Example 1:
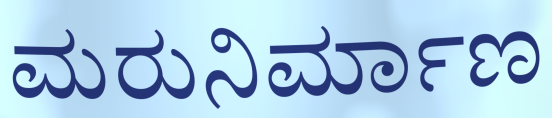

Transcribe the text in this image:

ಮರುನಿರ್ಮಾಣ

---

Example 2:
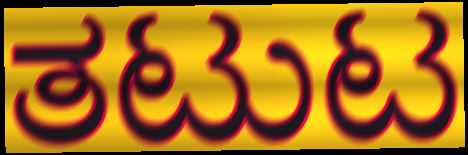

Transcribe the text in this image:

ತಟುಟ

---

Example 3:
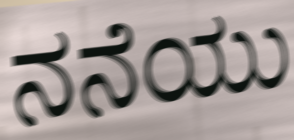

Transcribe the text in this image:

ನನೆಯು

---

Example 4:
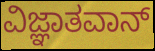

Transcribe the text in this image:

ವಿಜ್ಞಾತವಾನ್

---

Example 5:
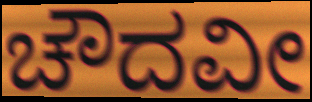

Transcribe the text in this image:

ಚೌದವೀ